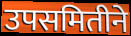
उपसमितीने